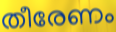
തീരേണം